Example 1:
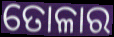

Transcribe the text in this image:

ତୋଳାର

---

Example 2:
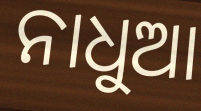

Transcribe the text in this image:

ନାଧୁଆ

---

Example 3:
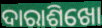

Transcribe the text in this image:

ଦାରାଶିଖୋ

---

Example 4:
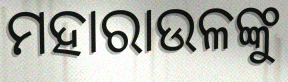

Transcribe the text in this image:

ମହାରାଉଳଙ୍କୁ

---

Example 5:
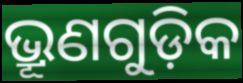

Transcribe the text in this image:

ଭ୍ରୂଣଗୁଡ଼ିକ